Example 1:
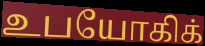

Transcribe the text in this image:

உபயோகிக்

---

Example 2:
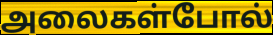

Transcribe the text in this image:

அலைகள்போல்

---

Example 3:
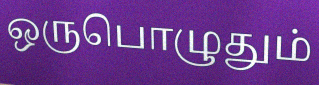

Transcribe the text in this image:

ஒருபொழுதும்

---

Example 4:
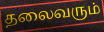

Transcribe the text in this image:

தலைவரும்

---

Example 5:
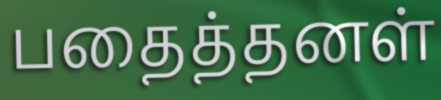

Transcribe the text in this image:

பதைத்தனள்